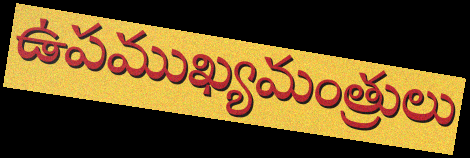
ఉపముఖ్యమంత్రులు